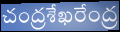
చంద్రశేఖరేంద్ర